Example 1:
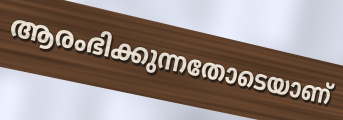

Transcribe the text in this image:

ആരംഭിക്കുന്നതോടെയാണ്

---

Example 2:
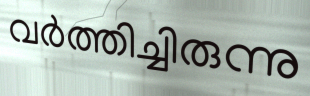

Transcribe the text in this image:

വർത്തിച്ചിരുന്നു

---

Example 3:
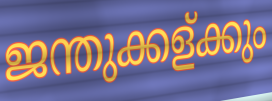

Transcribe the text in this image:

ജന്തുക്കള്ക്കും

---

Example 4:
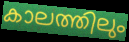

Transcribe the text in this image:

കാലത്തിലും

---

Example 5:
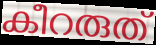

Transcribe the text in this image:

കീറരുത്